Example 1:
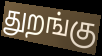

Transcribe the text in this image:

துறங்கு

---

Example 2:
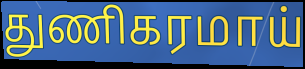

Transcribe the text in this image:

துணிகரமாய்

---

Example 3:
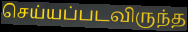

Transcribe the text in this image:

செய்யப்படவிருந்த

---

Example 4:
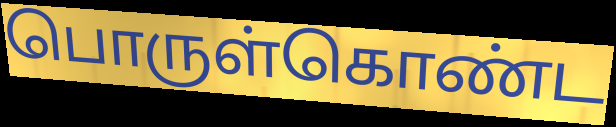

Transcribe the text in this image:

பொருள்கொண்ட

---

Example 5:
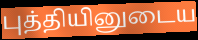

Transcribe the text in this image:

புத்தியினுடைய